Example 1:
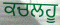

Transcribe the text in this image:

ਕਚਲਹੂ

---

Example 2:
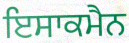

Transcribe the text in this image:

ਇਸਾਕਮੈਨ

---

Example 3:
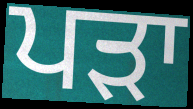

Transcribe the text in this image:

ਪੜਾ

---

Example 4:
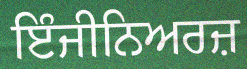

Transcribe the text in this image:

ਇੰਜੀਨਿਅਰਜ਼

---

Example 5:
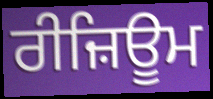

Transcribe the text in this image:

ਰੀਜ਼ਿਊਮ